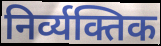
निर्व्यक्तिक